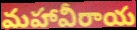
మహావీరాయ